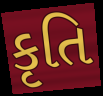
કૃતિ